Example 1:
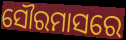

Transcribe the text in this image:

ସୌରମାସରେ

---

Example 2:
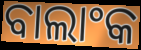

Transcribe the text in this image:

ବାଲାଂକ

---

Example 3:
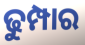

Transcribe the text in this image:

ଢୁମ୍ପାର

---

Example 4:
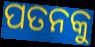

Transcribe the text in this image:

ପତନକୁ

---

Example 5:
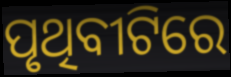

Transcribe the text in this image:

ପୃଥିବୀଟିରେ